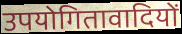
उपयोगितावादियों